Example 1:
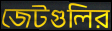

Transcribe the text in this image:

জেটগুলির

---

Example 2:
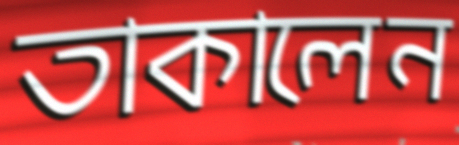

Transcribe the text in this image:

তাকালেন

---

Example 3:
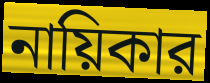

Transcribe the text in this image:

নায়িকার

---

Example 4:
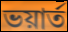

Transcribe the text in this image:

ভয়ার্ত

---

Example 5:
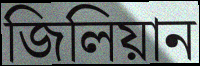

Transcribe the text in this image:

জিলিয়ান